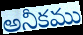
అనీకము